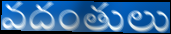
వదంతులు